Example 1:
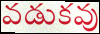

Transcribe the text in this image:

వడుకవు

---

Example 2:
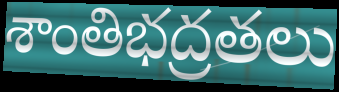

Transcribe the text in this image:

శాంతిభద్రతలు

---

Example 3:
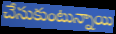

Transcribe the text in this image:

చేసుకుంటున్నాయి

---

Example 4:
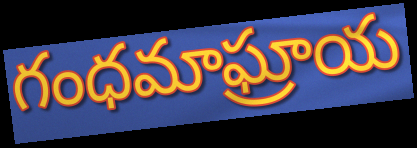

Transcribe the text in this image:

గంధమాఘ్రాయ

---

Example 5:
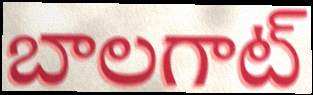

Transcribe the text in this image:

బాలగాట్